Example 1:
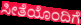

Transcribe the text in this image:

ಸೀತೆಯೊಂದಿಗೆ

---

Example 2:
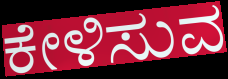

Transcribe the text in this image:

ಕೇಳಿಸುವ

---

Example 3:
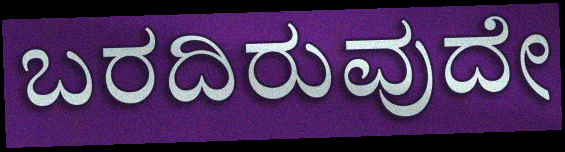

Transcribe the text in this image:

ಬರದಿರುವುದೇ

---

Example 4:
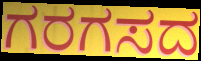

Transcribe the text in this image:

ಗರಗಸದ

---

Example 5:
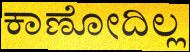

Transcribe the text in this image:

ಕಾಣೋದಿಲ್ಲ